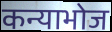
कन्याभोज